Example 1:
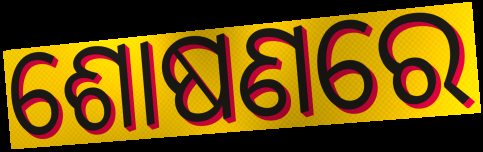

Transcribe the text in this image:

ଶୋଷଣରେ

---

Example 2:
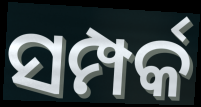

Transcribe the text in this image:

ସମ୍ପର୍କ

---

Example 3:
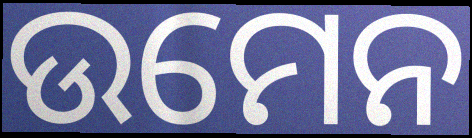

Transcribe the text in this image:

ଉମେନ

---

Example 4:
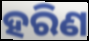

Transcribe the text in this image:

ହରିଣ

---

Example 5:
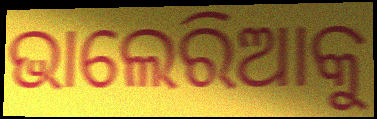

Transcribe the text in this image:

ଭାଲେରିଆକୁ